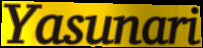
Yasunari